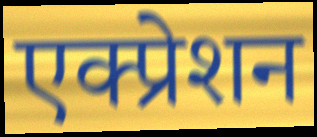
एक्प्रेशन